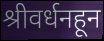
श्रीवर्धनहून